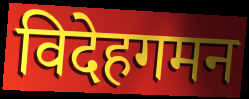
विदेहगमन